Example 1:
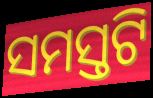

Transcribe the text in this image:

ସମସ୍ତଟି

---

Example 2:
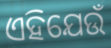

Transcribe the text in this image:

ଏହିଯେଉଁ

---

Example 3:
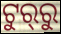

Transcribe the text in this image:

ଟୁର୍‍ରୁ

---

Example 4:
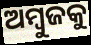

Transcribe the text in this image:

ଅମ୍ବୁଜକୁ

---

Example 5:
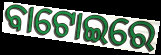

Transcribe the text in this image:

ବାଟୋଇରେ